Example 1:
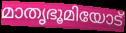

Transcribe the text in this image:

മാതൃഭൂമിയോട്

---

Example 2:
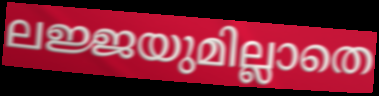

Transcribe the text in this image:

ലജ്ജയുമില്ലാതെ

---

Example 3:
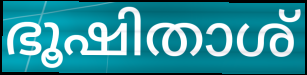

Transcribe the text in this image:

ഭൂഷിതാശ്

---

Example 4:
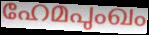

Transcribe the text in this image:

ഹേമപുംഖം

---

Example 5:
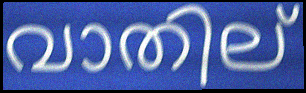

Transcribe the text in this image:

വാതില്